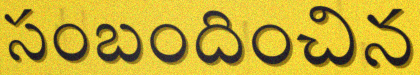
సంబందించిన